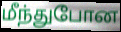
மீந்துபோன